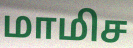
மாமிச